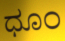
ಧೂಂ